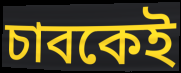
চাবকেই